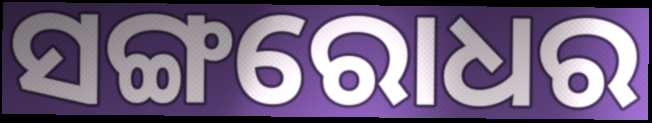
ସଙ୍ଗରୋଧର